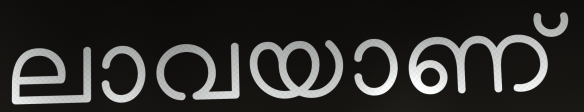
ലാവയാണ്